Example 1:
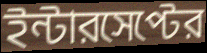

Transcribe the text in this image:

ইন্টারসেপ্টের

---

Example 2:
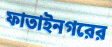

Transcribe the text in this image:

ফাতাইনগরের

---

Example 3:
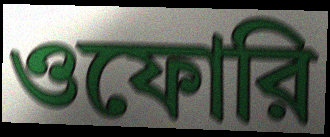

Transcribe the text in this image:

ওফোরি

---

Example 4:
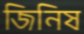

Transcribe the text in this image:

জিনিষ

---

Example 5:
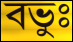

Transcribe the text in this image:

বভুঃ